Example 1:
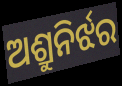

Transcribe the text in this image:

ଅଶ୍ରୁନିର୍ଝର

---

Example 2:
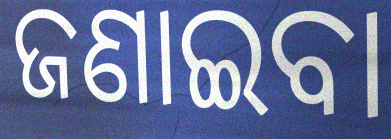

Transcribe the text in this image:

ଜଣାଇବା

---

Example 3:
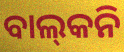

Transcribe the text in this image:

ବାଲ୍‍କନି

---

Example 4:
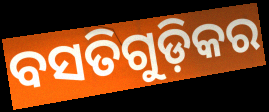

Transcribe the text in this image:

ବସତିଗୁଡ଼ିକର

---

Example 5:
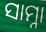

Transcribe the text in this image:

ସାମ୍ନା